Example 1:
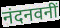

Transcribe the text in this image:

नंदनवनीं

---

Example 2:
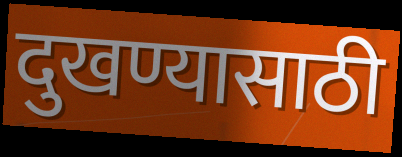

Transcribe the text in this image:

दुखण्यासाठी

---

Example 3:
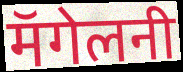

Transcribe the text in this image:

मॅगेलनी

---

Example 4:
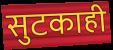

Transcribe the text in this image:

सुटकाही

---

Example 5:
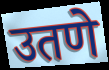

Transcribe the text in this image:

उतणे